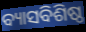
ବ୍ୟାସବିଶିଷ୍ଠ